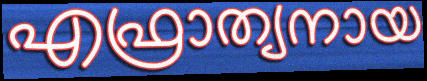
എഫ്രാത്യനായ